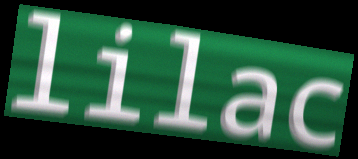
lilac